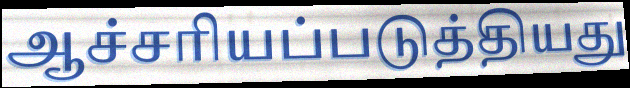
ஆச்சரியப்படுத்தியது